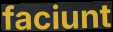
faciunt